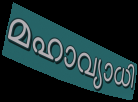
മഹാവ്യാധി